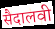
सैदालवी